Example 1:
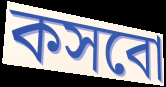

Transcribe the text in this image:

কসবো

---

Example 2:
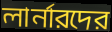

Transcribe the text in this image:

লার্নারদের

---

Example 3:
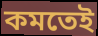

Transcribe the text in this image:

কমতেই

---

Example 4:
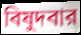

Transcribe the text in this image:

বিষুদবার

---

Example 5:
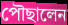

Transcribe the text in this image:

পৌছালেন